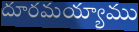
దూరమయ్యాము